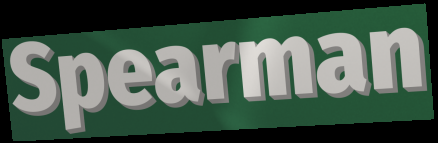
Spearman